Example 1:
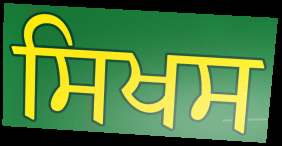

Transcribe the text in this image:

ਸਿਖਸ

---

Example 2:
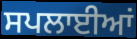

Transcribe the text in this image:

ਸਪਲਾਈਆਂ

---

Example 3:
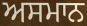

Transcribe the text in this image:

ਅਸਮਾਨ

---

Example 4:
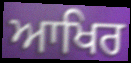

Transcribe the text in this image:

ਆਖਿਰ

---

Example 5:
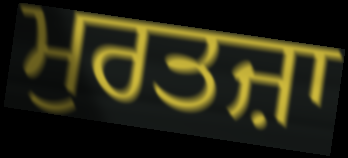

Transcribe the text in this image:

ਮੁਰਤਜ਼ਾ